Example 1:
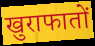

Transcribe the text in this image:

खुराफातों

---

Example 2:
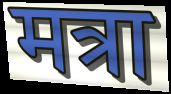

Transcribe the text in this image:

मत्रा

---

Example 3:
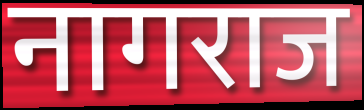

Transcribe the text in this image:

नागराज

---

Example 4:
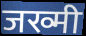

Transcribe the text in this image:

जख्मी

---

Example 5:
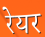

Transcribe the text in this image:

रेयर